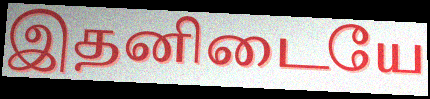
இதனிடையே